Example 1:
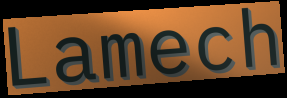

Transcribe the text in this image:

Lamech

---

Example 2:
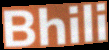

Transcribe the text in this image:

Bhili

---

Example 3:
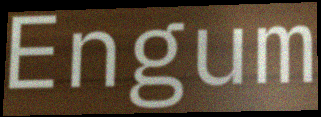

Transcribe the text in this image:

Engum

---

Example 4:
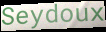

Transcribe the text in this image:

Seydoux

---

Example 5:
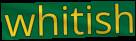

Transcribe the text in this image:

whitish